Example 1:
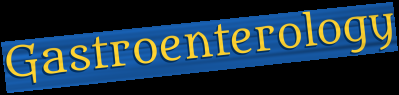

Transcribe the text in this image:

Gastroenterology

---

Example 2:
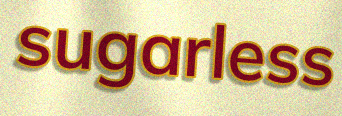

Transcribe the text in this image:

sugarless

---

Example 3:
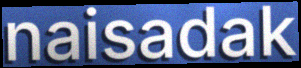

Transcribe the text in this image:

naisadak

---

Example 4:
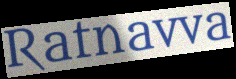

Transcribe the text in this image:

Ratnavva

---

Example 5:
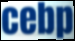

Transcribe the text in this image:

cebp